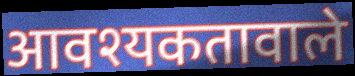
आवश्यकतावाले